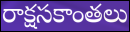
రాక్షసకాంతలు